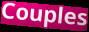
Couples